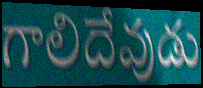
గాలిదేవుడు